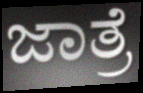
ಜಾತ್ರೆ